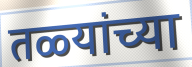
तळ्यांच्या